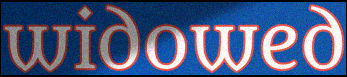
widowed